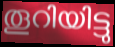
തൂറിയിട്ടു